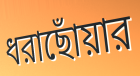
ধরাছোঁয়ার